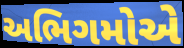
અભિગમોએ